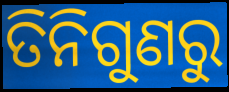
ତିନିଗୁଣରୁ